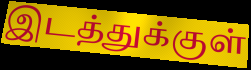
இடத்துக்குள்